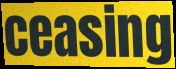
ceasing